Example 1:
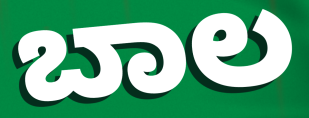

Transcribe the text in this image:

ಬಾಲ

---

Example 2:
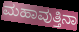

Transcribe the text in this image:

ಮಹಾವುತ್ತಿನಾ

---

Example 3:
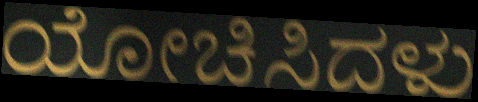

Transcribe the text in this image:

ಯೋಚಿಸಿದಳು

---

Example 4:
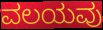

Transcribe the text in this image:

ವಲಯವು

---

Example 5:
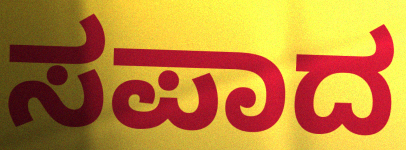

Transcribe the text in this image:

ಸಪಾದ